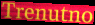
Trenutno